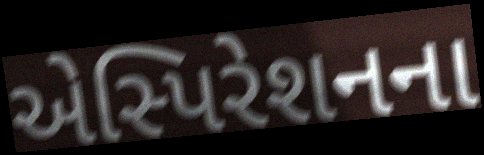
એસ્પિરેશનના